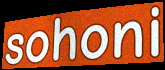
sohoni